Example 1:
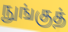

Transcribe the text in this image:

நுங்குத்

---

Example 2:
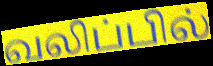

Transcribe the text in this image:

வலிப்பில்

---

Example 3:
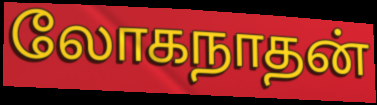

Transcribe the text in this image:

லோகநாதன்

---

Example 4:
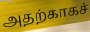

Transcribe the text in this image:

அதற்காகச்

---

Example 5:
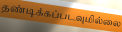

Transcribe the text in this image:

தண்டிக்கப்படவுமில்லை